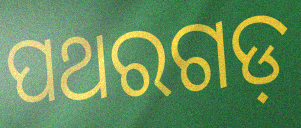
ପଥରଗଡ଼